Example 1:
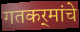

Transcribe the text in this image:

गतकर्मांचे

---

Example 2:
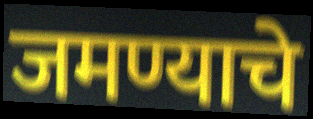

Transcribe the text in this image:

जमण्याचे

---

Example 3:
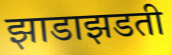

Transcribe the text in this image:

झाडाझडती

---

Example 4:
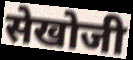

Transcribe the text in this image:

सेखोजी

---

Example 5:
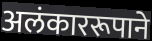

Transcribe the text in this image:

अलंकाररूपाने